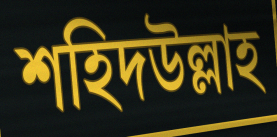
শহিদউল্লাহ